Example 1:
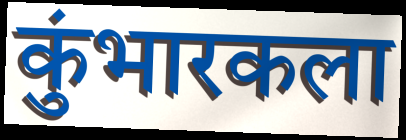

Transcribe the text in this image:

कुंभारकला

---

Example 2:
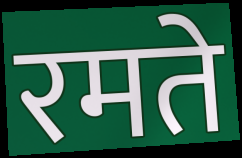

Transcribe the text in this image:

रमते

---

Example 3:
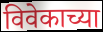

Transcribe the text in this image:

विवेकाच्या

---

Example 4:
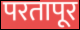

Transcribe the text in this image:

परतापूर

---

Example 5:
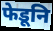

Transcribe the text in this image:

फेडूनि